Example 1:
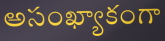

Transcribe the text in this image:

అసంఖ్యాకంగా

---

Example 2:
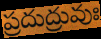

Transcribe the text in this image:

ప్రదుద్రువుః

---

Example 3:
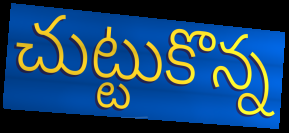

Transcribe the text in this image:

చుట్టుకొన్న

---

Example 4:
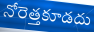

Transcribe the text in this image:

నోరెత్తకూడదు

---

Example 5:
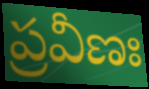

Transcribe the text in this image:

ప్రవీణః